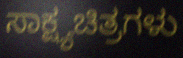
ಸಾಕ್ಷ್ಯಚಿತ್ರಗಳು